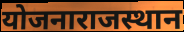
योजनाराजस्थान